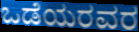
ಒಡೆಯರವರ